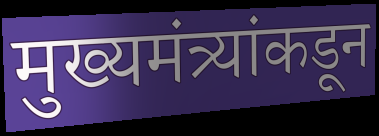
मुख्यमंत्र्यांकडून